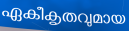
ഏകീകൃതവുമായ